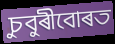
চুবুৰীবোৰত